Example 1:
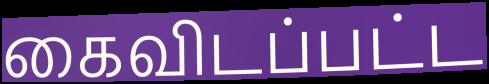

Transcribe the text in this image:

கைவிடப்பட்ட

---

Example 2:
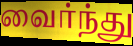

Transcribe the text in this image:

வைர்ந்து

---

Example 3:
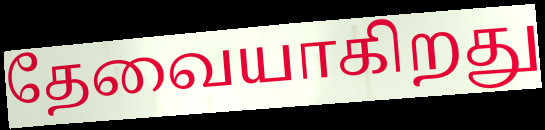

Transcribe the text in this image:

தேவையாகிறது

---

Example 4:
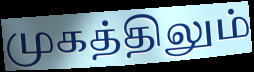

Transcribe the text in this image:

முகத்திலும்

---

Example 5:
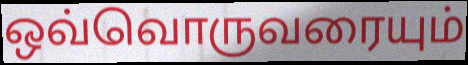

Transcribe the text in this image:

ஒவ்வொருவரையும்